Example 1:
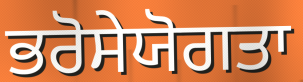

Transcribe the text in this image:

ਭਰੋਸੇਯੋਗਤਾ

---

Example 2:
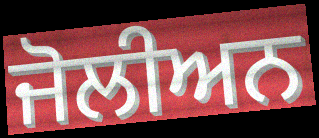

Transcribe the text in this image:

ਜੋਲੀਅਨ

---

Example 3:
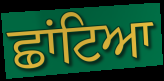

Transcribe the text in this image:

ਛਾਂਟਿਆ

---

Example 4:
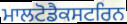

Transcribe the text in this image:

ਮਾਲਟੋਡੈਕਸਟਰਿਨ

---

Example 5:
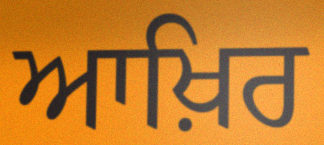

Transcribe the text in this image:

ਆਖ਼ਿਰ